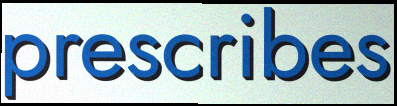
prescribes